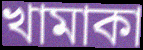
খামাকা